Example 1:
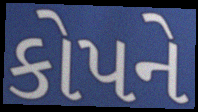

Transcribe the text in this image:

કોપને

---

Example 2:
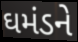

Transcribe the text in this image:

ઘમંડને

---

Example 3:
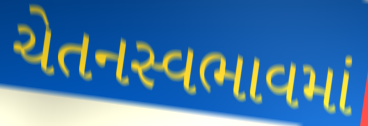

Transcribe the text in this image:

ચેતનસ્વભાવમાં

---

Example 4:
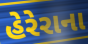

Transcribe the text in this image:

હેરેરાના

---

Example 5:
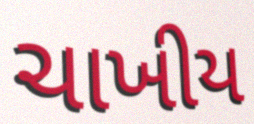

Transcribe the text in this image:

ચાખીય